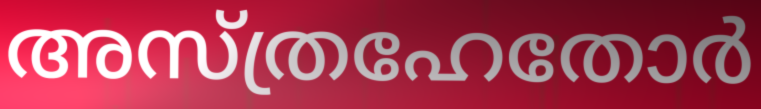
അസ്ത്രഹേതോർ